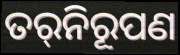
ତର୍‌ନିରୂପଣ